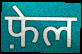
फ़ेल